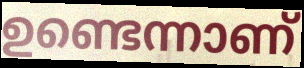
ഉണ്ടെന്നാണ്